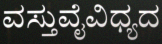
ವಸ್ತುವೈವಿಧ್ಯದ